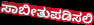
ಸಾಬೀತುಪಡಿಸಲಿ